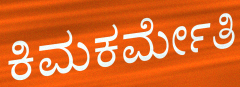
ಕಿಮಕರ್ಮೇತಿ